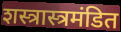
शस्त्रास्त्रमंडित